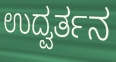
ಉದ್ವರ್ತನ